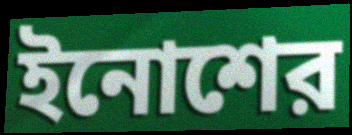
ইনোশের